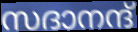
സദാനന്ദ്